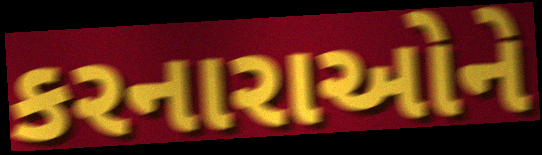
કરનારાઓને